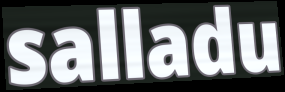
salladu